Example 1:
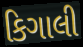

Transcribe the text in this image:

કિગાલી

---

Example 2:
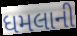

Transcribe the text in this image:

ધમલાની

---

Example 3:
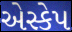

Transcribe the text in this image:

એસ્કેપ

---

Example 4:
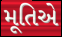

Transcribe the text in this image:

મૂતિએ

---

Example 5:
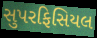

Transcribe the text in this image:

સુપરફિસિયલ